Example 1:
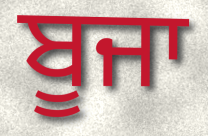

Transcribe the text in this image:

ਬੂਜਾ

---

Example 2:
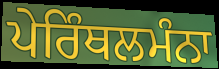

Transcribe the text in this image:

ਪੇਰਿੰਥਲਮੰਨਾ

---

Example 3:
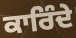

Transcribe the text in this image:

ਕਾਰਿੰਦੇ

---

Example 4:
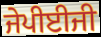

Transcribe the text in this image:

ਜੇਪੀਈਜੀ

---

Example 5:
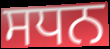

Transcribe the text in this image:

ਸਧਨ